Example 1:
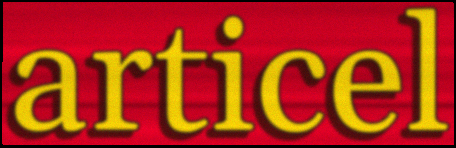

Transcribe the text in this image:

articel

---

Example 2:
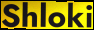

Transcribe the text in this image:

Shloki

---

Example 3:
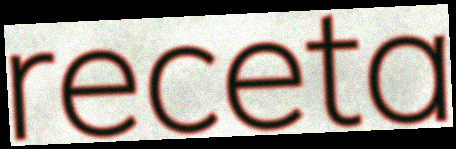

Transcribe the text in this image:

receta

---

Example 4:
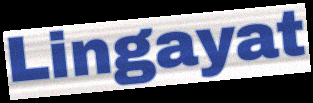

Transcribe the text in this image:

Lingayat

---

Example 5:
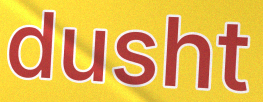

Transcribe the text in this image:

dusht